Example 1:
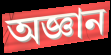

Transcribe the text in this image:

অজ্ঞান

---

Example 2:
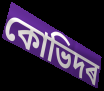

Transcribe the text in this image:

কোভিদৰ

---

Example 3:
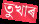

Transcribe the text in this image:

তুখাৰ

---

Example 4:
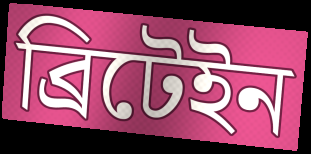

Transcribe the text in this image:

ব্ৰিটেইন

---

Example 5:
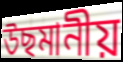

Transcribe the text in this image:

উছমানীয়